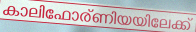
കാലിഫോര്ണിയയിലേക്ക്